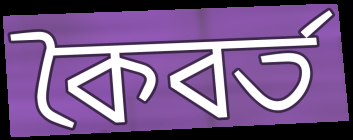
কৈবর্ত